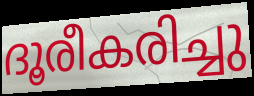
ദൂരീകരിച്ചു